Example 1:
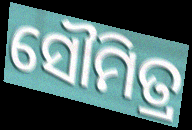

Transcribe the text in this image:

ସୌମିତ୍ର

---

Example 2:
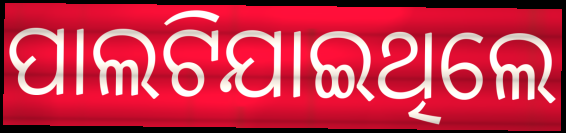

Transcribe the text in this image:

ପାଲଟିଯାଇଥିଲେ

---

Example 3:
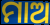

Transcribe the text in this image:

ମାଅ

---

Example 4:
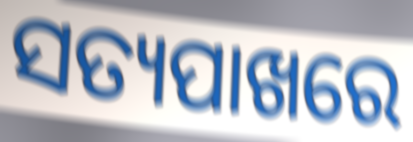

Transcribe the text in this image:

ସତ୍ୟପାଖରେ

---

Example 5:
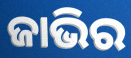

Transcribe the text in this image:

ଜାଭିର